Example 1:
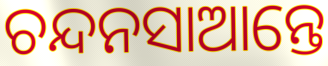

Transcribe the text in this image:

ଚନ୍ଦନସାଆନ୍ତେ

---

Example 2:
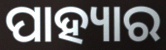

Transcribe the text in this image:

ପାହ୍ୟାର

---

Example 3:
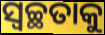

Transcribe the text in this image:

ସ୍ବଚ୍ଛତାକୁ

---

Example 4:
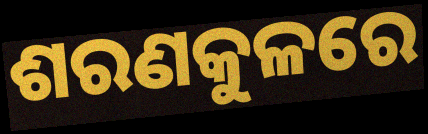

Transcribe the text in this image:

ଶରଣକୁଳରେ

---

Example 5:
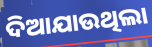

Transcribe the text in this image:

ଦିଆଯାଉଥିଲା